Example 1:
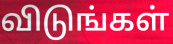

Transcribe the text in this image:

விடுங்கள்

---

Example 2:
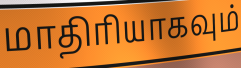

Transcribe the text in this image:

மாதிரியாகவும்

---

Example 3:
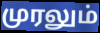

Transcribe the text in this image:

முரலும்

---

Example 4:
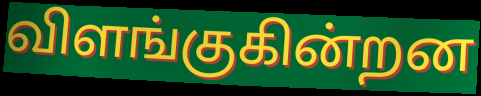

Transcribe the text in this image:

விளங்குகின்றன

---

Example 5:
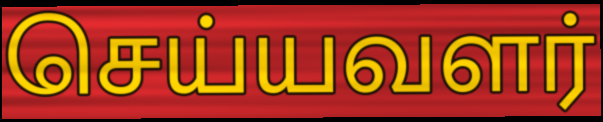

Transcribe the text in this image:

செய்யவளர்